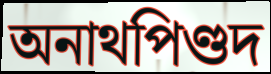
অনাথপিণ্ডদ